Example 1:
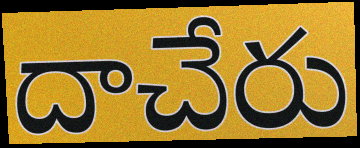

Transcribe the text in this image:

దాచేరు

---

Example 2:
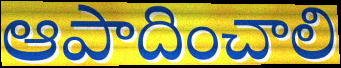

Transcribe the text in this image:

ఆపాదించాలి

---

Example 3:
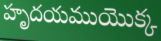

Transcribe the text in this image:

హృదయముయొక్క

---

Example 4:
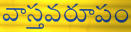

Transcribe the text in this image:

వాస్తవరూపం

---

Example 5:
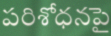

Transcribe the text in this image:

పరిశోధనపై